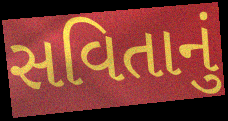
સવિતાનું